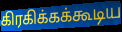
கிரகிக்கக்கூடிய